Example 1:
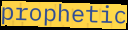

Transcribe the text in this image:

prophetic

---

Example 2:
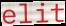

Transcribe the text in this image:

elit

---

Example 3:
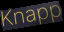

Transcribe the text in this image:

Knapp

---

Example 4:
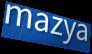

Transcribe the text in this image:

mazya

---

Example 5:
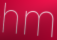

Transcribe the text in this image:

hm